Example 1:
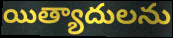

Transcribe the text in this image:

యిత్యాదులను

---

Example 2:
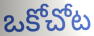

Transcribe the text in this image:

ఒకోచోట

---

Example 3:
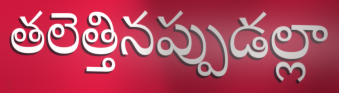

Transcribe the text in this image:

తలెత్తినప్పుడల్లా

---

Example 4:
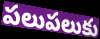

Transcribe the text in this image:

పలుపలుకు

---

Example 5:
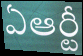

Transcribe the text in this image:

ఏఆర్టీ